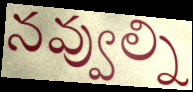
నవ్వుల్ని